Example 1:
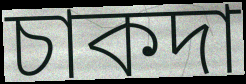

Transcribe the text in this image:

চাকদা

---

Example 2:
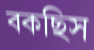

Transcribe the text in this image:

বকছিস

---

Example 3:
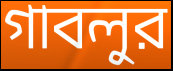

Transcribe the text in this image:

গাবলুর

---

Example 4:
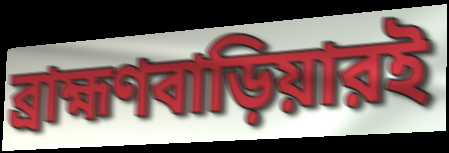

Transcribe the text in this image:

ব্রাহ্মণবাড়িয়ারই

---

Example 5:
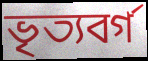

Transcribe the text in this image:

ভৃত্যবর্গ